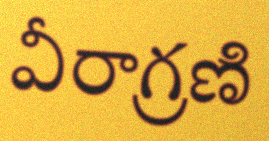
వీరాగ్రణి